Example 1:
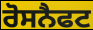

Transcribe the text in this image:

ਰੋਸਨੈਫਟ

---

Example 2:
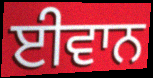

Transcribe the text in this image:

ਈਵਾਨ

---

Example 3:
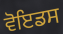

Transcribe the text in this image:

ਵੋਇਡਸ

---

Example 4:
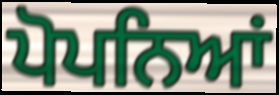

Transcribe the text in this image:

ਪੋਪਨਿਆਂ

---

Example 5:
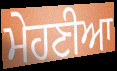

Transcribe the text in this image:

ਮੇਹਣੀਆ